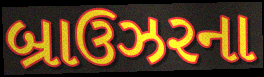
બ્રાઉઝરના